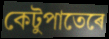
কেটুপাতেৰে